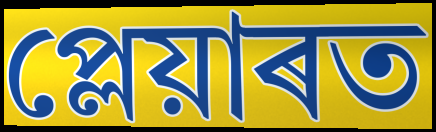
প্লেয়াৰত